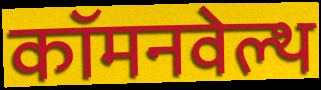
कॉमनवेल्थ